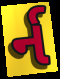
ર્ન